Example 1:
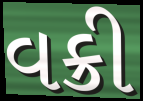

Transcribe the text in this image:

વક્રી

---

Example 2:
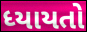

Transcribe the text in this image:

ધ્યાયતો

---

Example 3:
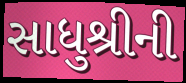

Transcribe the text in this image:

સાધુશ્રીની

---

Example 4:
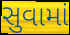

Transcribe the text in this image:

સુવામાં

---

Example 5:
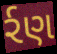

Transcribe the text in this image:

ર્રણ